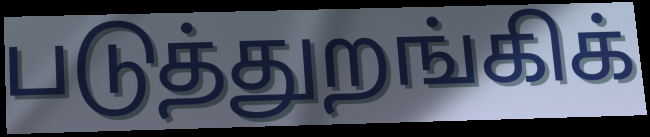
படுத்துறங்கிக்